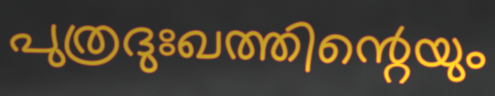
പുത്രദുഃഖത്തിന്റെയും